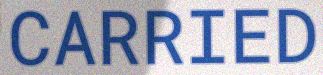
CARRIED